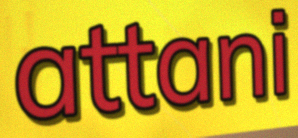
attani